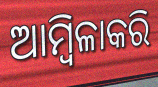
ଆମ୍ବିଳାକରି